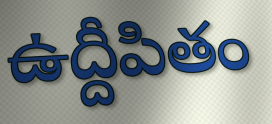
ఉద్దీపితం